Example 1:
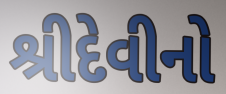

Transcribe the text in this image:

શ્રીદેવીનો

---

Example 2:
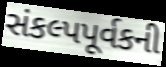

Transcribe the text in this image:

સંકલ્પપૂર્વકની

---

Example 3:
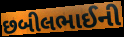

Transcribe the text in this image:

છબીલભાઈની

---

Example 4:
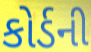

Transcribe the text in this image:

કોર્ડની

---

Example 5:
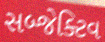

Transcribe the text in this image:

સબ્જેક્ટિવ